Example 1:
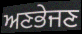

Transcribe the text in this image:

ਅਣਭੇਜਣ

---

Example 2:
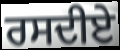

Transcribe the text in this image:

ਰਸਦੀਏ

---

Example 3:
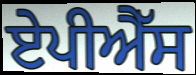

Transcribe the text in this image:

ਏਪੀਐੱਸ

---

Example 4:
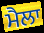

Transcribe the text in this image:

ਮੈਲਾ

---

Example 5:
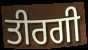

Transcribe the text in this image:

ਤੀਰਗੀ